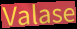
Valase